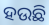
ହଉଛି